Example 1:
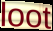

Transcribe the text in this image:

loot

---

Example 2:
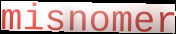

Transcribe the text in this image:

misnomer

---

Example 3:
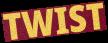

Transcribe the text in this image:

TWIST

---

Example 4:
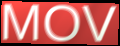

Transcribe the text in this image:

MOV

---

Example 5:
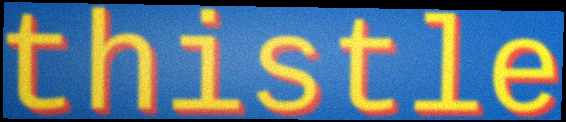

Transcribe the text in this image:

thistle